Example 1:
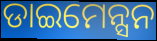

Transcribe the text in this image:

ଡାଇମେନ୍ସନ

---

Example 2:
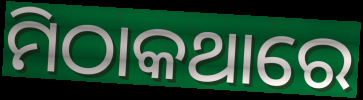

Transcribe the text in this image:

ମିଠାକଥାରେ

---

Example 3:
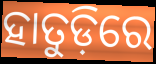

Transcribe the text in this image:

ହାତୁଡ଼ିରେ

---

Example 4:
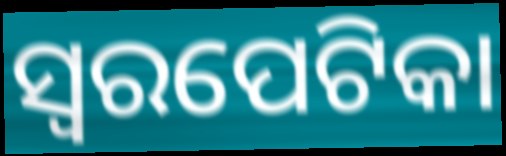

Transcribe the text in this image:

ସ୍ୱରପେଟିକା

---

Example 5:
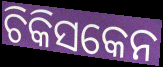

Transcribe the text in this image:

ଚିକିସକେନ